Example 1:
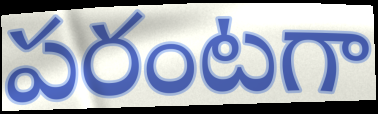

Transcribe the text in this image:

పరంటగా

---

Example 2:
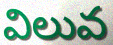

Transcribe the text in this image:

విలువ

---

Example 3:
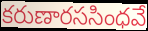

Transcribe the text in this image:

కరుణారససింధవే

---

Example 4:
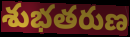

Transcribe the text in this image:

శుభతరుణ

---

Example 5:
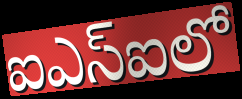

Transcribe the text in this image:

ఐఎస్ఐలో